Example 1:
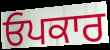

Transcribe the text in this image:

ਓਪਕਾਰ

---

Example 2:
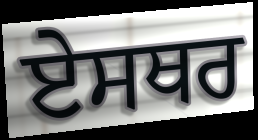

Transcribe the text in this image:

ਏਸਥਰ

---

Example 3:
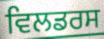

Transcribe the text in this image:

ਵਿਲਡਰਸ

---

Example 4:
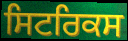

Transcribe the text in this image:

ਸਿਟਰਿਕਸ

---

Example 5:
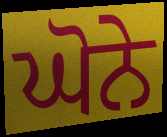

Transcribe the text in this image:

ਘੋਨੇ